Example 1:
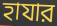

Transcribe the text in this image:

হাযার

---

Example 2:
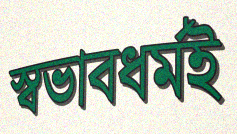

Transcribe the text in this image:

স্বভাবধর্মই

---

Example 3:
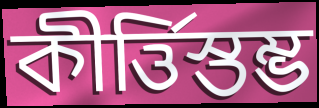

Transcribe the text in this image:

কীর্ত্তিস্তম্ভ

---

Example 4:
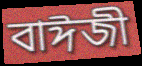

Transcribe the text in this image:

বাঈজী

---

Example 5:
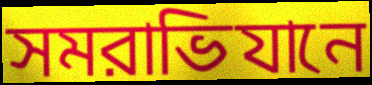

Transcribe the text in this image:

সমরাভিযানে